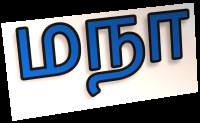
மநா